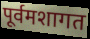
पूर्वमशागत